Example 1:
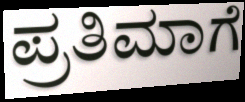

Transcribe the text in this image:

ಪ್ರತಿಮಾಗೆ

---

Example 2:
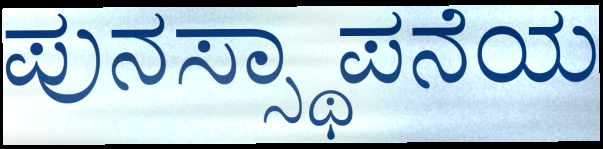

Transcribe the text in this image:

ಪುನಸ್ಸ್ಥಾಪನೆಯ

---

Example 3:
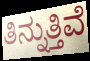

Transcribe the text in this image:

ತಿನ್ನುತ್ತಿವೆ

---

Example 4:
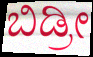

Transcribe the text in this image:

ಬಿಡ್ರೀ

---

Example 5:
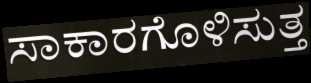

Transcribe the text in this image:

ಸಾಕಾರಗೊಳಿಸುತ್ತ